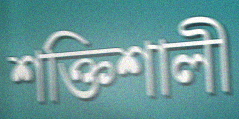
শক্তিশালী